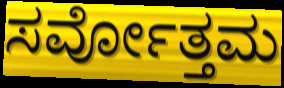
ಸರ್ವೋತ್ತಮ